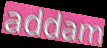
addam